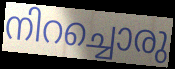
നിറച്ചൊരു